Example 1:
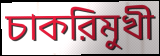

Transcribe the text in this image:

চাকরিমুখী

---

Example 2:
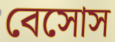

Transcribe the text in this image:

বেসোস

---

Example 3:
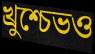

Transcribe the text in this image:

খ্রুশ্চেভও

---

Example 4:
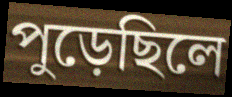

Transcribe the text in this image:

পুড়েছিলে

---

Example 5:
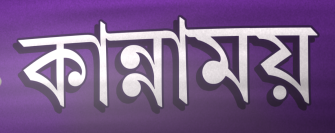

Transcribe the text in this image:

কান্নাময়